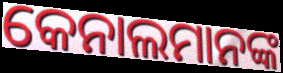
କେନାଲମାନଙ୍କ